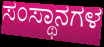
ಸಂಸ್ಥಾನಗಳ